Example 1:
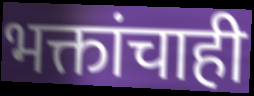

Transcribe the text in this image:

भक्तांचाही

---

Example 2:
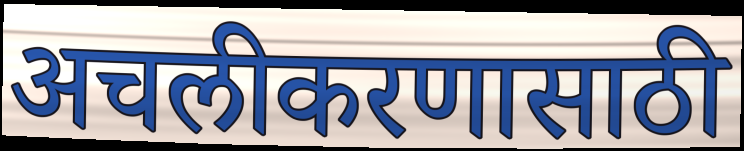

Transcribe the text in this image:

अचलीकरणासाठी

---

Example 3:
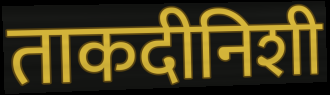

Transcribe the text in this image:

ताकदीनिशी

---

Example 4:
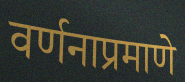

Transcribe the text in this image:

वर्णनाप्रमाणे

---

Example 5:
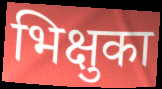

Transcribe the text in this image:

भिक्षुका